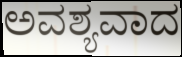
ಅವಶ್ಯವಾದ